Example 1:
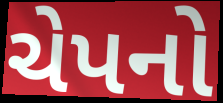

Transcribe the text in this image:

ચેપનો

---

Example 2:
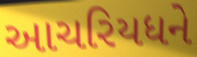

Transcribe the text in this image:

આચરિયધને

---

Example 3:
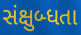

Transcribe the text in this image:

સંક્ષુબ્ધતા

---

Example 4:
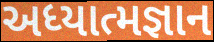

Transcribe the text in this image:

અધ્યાત્મજ્ઞાન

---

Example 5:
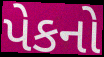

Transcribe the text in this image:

પેકનો